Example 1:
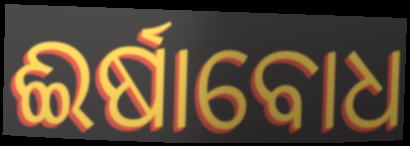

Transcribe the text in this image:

ଈର୍ଷାବୋଧ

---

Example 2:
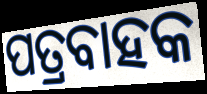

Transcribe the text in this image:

ପତ୍ରବାହକ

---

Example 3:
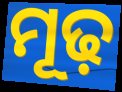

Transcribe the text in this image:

ମୂଢ଼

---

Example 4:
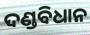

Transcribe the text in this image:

ଦଣ୍ଡବିଧାନ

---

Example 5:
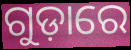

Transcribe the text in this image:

ଗୁଡ଼ାରେ